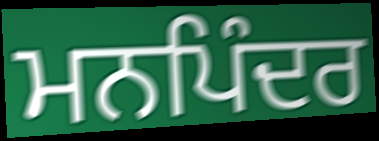
ਮਨਪਿੰਦਰ